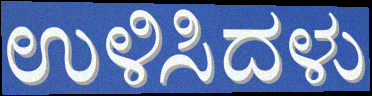
ಉಳಿಸಿದಳು